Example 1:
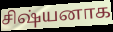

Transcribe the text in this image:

சிஷ்யனாக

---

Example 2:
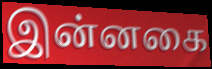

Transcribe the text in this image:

இன்னகை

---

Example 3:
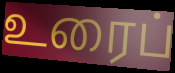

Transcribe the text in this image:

உரைப்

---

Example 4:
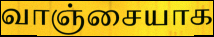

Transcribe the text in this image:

வாஞ்சையாக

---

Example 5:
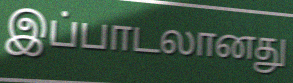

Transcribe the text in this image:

இப்பாடலானது